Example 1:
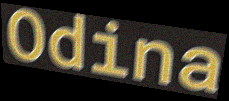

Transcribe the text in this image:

Odina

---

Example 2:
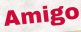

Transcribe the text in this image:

Amigo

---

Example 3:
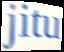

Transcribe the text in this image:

jitu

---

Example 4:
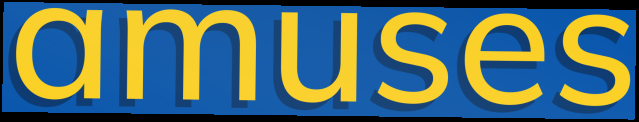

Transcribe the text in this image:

amuses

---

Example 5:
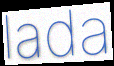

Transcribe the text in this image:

lada